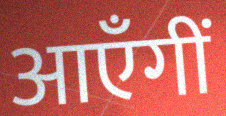
आएँगीं